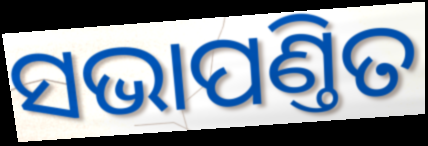
ସଭାପଣ୍ତିତ